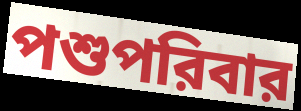
পশুপরিবার